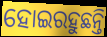
ହୋଇରହୁଛନ୍ତି